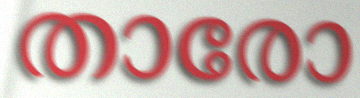
താരോ